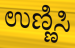
ಉಣ್ಣಿಸಿ